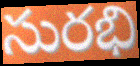
సురభి